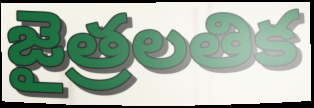
జైత్రలతిక